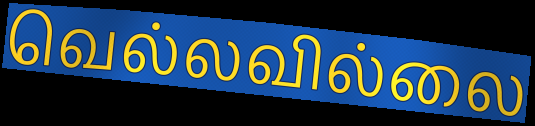
வெல்லவில்லை